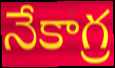
నేకాగ్ర